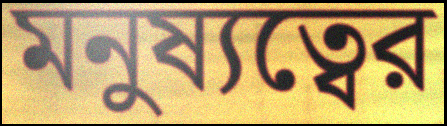
মনুষ্যত্বের